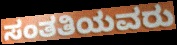
ಸಂತತಿಯವರು